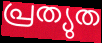
പ്രത്യുത